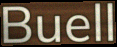
Buell